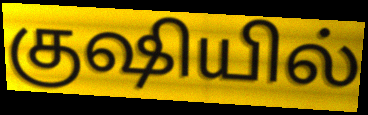
குஷியில்